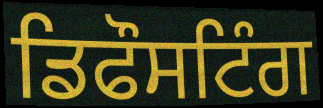
ਡਿਫੌਸਟਿੰਗ